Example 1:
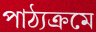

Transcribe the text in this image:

পাঠ্যক্রমে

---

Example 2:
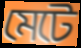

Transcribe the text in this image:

মেটে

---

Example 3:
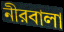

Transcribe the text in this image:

নীরবালা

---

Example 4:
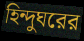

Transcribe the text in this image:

হিন্দুঘরের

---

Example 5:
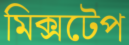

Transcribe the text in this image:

মিক্সটেপ